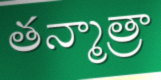
తన్మాత్రా